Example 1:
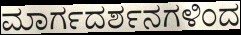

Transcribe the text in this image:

ಮಾರ್ಗದರ್ಶನಗಳಿಂದ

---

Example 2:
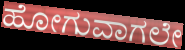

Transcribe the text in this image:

ಹೋಗುವಾಗಲೇ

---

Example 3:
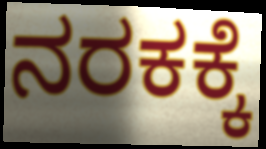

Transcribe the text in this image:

ನರಕಕ್ಕೆ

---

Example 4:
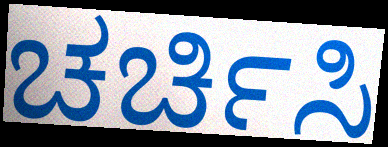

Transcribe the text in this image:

ಚರ್ಚಿಸಿ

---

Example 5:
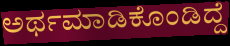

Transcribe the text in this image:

ಅರ್ಥಮಾಡಿಕೊಂಡಿದ್ದೆ